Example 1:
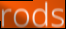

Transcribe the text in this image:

rods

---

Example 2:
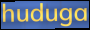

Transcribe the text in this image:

huduga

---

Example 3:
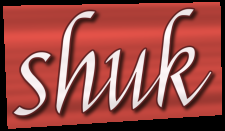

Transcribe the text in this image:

shuk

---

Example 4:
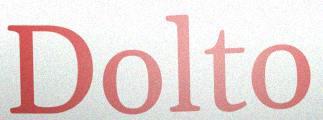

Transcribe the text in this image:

Dolto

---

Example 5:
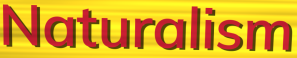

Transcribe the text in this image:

Naturalism